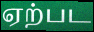
ஏற்பட